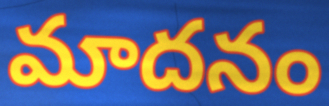
మాదనం